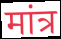
मांत्र